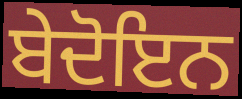
ਬੇਦੋਇਨ